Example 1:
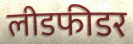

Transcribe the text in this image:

लीडफीडर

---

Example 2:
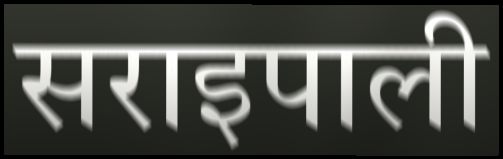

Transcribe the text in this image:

सराइपाली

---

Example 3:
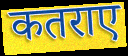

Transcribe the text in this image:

कतराए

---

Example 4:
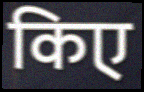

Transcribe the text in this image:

किए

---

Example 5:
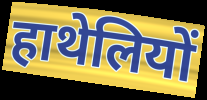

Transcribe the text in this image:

हाथेलियों